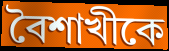
বৈশাখীকে